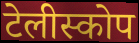
टेलीस्कोप